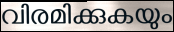
വിരമിക്കുകയും